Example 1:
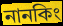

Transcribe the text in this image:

নানকিং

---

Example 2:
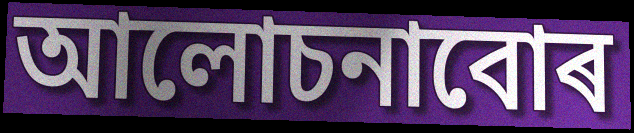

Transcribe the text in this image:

আলোচনাবোৰ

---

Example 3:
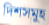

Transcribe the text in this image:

দিশসমূহ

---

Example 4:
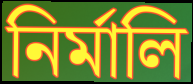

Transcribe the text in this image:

নিৰ্মালি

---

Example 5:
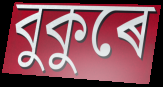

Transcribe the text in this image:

বুকুৰে